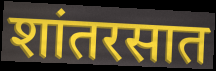
शांतरसात